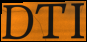
DTI